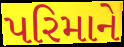
પરિમાને